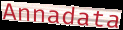
Annadata